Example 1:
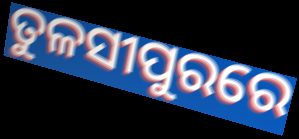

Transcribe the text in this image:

ତୁଳସୀପୁରରେ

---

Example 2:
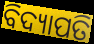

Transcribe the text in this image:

ବିଦ୍ୟାପତି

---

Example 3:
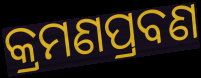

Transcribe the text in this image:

କ୍ରମଣପ୍ରବଣ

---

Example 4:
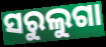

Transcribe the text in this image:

ସରୁଲୁଗା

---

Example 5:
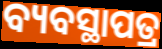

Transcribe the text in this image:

ବ୍ୟବସ୍ଥାପତ୍ର